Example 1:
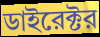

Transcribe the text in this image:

ডাইরেক্টর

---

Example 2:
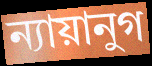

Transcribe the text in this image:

ন্যায়ানুগ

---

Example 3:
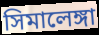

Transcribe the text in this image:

সিমালেঙ্গা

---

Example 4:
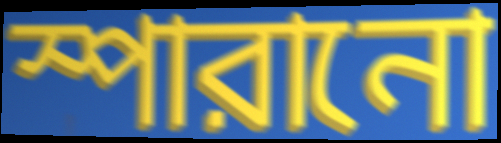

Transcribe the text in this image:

স্পারানো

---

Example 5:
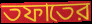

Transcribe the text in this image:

তফাতের